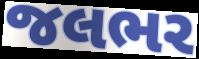
જલભર